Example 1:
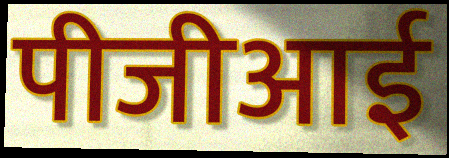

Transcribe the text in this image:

पीजीआई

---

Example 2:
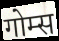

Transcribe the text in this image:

गोम्स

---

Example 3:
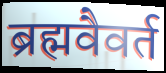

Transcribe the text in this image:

ब्रह्मवैवर्त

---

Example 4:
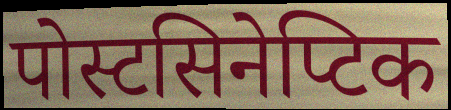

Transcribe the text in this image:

पोस्टसिनेप्टिक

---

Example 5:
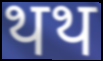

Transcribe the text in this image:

थथ